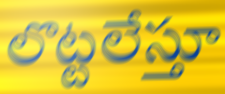
లొట్టలేస్తూ